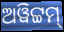
ଅୱିଟ୍ଟମ୍